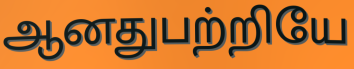
ஆனதுபற்றியே